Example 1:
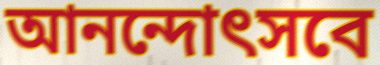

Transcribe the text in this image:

আনন্দোৎসবে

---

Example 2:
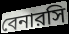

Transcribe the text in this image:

বেনারসি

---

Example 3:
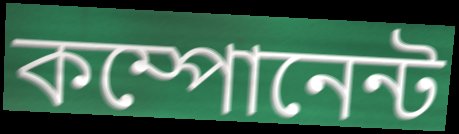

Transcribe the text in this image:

কম্পোনেন্ট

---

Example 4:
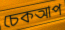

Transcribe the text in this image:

চেকআপ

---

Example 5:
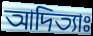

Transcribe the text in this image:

আদিত্যাঃ